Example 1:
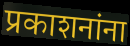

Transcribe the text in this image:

प्रकाशनांना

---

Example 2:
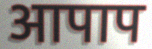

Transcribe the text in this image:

आपाप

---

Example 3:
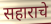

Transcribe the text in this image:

सहाराचे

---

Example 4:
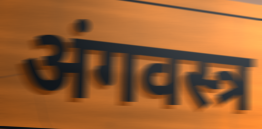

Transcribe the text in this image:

अंगवस्त्र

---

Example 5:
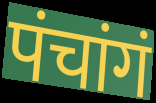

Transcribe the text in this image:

पंचांगं